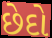
છેદો